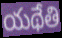
యథేతి